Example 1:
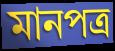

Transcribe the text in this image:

মানপত্র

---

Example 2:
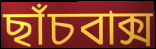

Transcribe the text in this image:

ছাঁচবাক্স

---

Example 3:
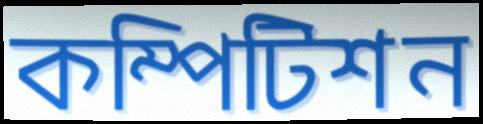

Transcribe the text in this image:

কম্পিটিশন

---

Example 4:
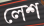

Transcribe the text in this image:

লেশ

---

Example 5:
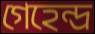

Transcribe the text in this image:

গেহেন্দ্র